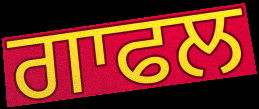
ਗਾਫਲ